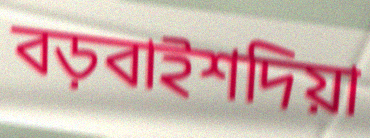
বড়বাইশদিয়া